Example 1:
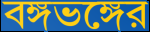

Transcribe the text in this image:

বঙ্গভঙ্গের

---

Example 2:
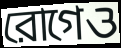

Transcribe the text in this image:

রোগেও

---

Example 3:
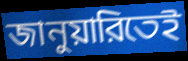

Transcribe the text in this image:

জানুয়ারিতেই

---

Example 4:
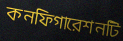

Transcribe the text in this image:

কনফিগারেশনটি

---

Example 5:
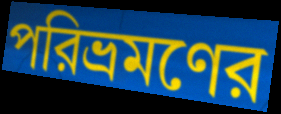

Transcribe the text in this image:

পরিভ্রমণের